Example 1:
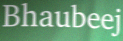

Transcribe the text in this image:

Bhaubeej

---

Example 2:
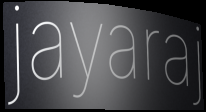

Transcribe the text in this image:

jayaraj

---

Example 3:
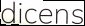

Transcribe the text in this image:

dicens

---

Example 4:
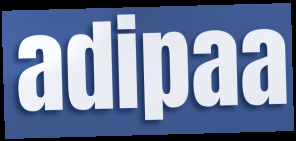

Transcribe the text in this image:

adipaa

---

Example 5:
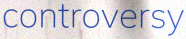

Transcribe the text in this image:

controversy